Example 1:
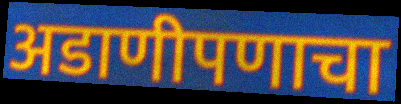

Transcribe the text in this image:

अडाणीपणाचा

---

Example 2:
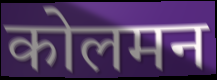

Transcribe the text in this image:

कोलमन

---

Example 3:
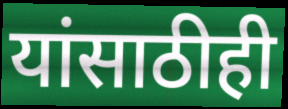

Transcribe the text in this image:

यांसाठीही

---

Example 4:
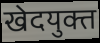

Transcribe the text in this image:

खेदयुक्त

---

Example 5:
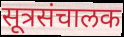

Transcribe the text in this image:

सूत्रसंचालक